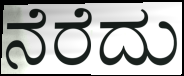
ನೆರೆದು